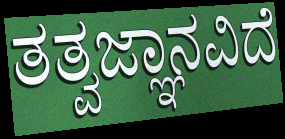
ತತ್ವಜ್ಞಾನವಿದೆ